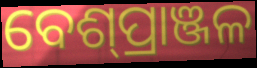
ବେଶ୍‌ପ୍ରାଞ୍ଜଳ